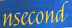
nsecond